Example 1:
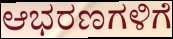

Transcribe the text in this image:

ಆಭರಣಗಳಿಗೆ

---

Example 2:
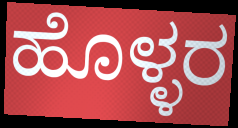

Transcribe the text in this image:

ಹೊಳ್ಳರ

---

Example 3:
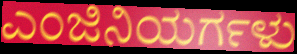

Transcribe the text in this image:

ಎಂಜಿನಿಯರ್ಗಳು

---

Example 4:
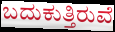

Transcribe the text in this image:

ಬದುಕುತ್ತಿರುವೆ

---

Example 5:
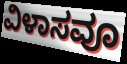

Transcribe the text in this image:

ವಿಳಾಸವೂ